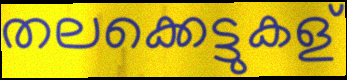
തലക്കെട്ടുകള്